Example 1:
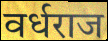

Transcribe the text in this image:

वर्धराज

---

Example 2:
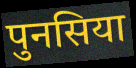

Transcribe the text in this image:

पुनसिया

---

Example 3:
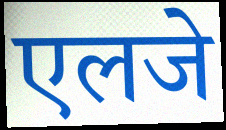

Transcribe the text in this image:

एलजे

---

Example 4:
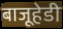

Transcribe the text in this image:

बाजूहेडी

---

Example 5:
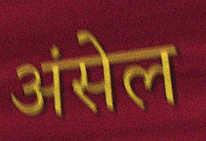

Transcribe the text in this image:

अंसेल